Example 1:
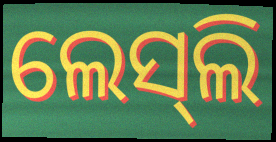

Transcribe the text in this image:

ଲେସ୍‍ଲି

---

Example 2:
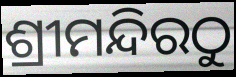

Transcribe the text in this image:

ଶ୍ରୀମନ୍ଦିରଠୁ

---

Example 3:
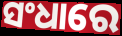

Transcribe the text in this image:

ସଂଧାରେ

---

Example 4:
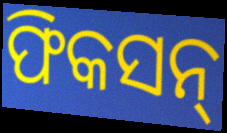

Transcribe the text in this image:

ଫିକସନ୍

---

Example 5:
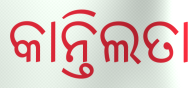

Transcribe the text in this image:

କାନ୍ତିଲତା